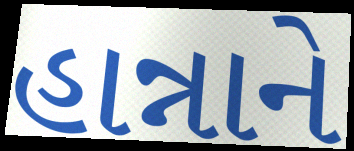
હાન્નાને